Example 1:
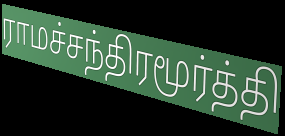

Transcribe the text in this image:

ராமச்சந்திரமூர்த்தி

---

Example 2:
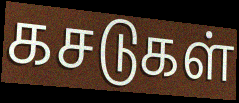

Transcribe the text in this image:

கசடுகள்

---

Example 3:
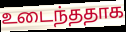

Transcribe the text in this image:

உடைந்ததாக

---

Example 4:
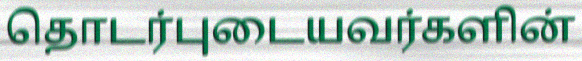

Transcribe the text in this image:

தொடர்புடையவர்களின்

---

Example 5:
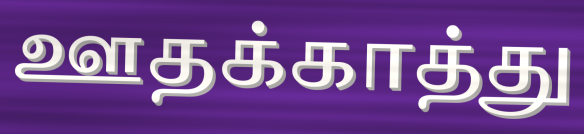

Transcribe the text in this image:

ஊதக்காத்து